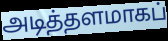
அடித்தளமாகப்